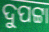
ଦୁପଟ୍ଟା